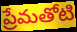
ప్రేమతోటి